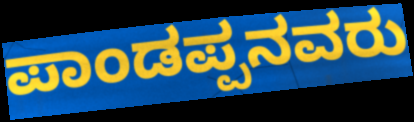
ಪಾಂಡಪ್ಪನವರು